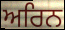
ਅਰਿਨ